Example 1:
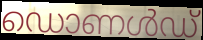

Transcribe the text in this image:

ഡൊണൾഡ്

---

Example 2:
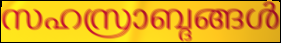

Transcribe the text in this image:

സഹസ്രാബ്ദങ്ങൾ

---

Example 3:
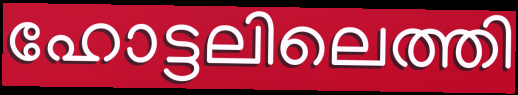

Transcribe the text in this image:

ഹോട്ടലിലെത്തി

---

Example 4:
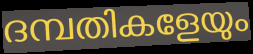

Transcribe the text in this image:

ദമ്പതികളേയും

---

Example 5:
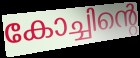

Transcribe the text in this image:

കോച്ചിന്റെ